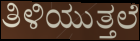
ತಿಳಿಯುತ್ತಲೆ